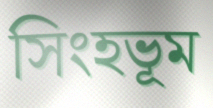
সিংহভূম